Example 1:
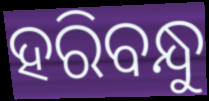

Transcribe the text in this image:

ହରିବନ୍ଧୁ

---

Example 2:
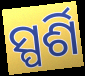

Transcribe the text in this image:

ସ୍ପର୍ଶି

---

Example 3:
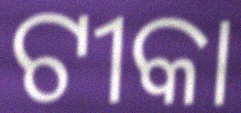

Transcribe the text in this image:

ଟୀକା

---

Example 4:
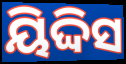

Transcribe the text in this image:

ୟିଦ୍ଦିସ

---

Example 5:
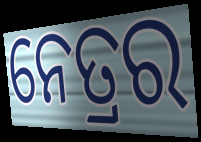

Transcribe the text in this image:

ନେତ୍ରର